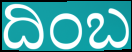
ದಿಂಬ